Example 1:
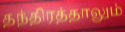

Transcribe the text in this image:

தந்திரத்தாலும்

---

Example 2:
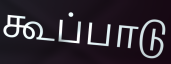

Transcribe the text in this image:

கூப்பாடு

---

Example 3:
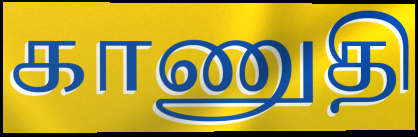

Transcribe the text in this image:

காணுதி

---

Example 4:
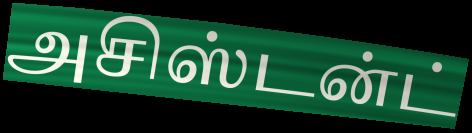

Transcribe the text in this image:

அசிஸ்டன்ட்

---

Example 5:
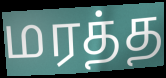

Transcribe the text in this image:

மரத்த